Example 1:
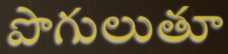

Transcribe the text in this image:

పొగులుతూ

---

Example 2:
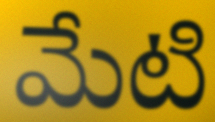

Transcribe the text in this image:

మేటి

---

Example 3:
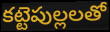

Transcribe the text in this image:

కట్టెపుల్లలతో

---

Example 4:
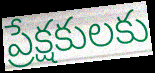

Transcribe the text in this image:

ప్రేక్షకులకు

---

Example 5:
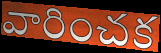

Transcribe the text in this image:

వారించక